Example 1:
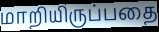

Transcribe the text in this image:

மாறியிருப்பதை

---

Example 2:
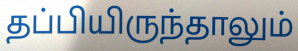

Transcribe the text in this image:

தப்பியிருந்தாலும்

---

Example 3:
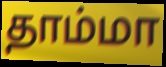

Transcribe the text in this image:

தாம்மா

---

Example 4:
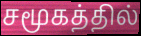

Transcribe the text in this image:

சமூகத்தில்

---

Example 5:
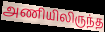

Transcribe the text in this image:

அணியிலிருந்த